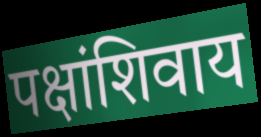
पक्षांशिवाय